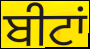
ਬੀਟਾਂ